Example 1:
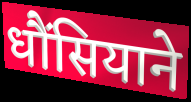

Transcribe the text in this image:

धौंसियाने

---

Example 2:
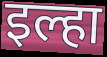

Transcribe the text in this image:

इल्हा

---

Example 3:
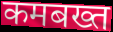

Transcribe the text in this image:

कमबख्त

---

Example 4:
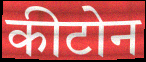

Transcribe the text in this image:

कीटोन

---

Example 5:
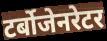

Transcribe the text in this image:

टर्बोजेनरेटर